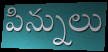
పిన్నులు